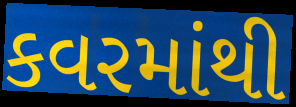
કવરમાંથી